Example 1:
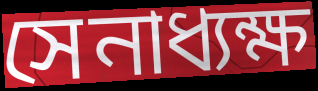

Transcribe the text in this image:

সেনাধ্যক্ষ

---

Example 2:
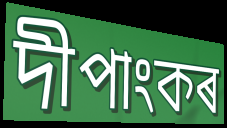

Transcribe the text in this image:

দীপাংকৰ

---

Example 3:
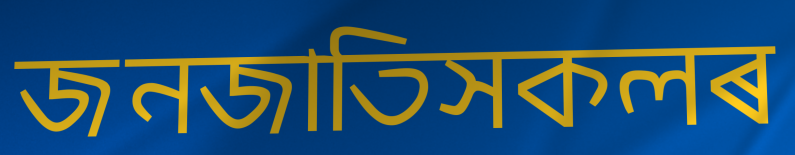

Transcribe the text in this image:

জনজাতিসকলৰ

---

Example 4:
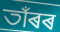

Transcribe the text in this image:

তাঁৰৰ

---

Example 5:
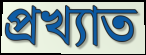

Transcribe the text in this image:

প্ৰখ্যাত